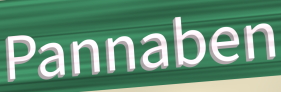
Pannaben